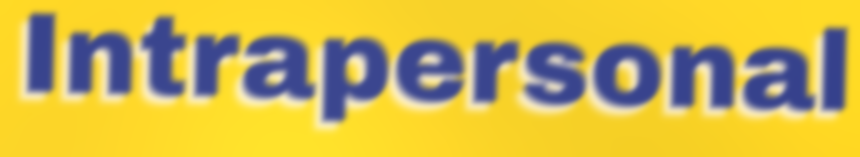
Intrapersonal